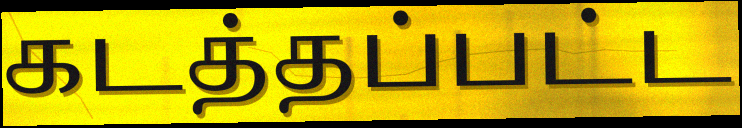
கடத்தப்பட்ட